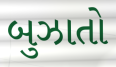
બુઝાતો